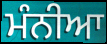
ਮੰਨੀਆ